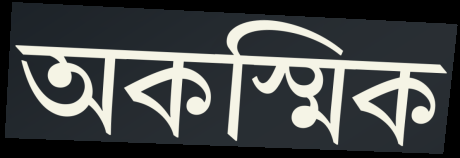
অকস্মিক